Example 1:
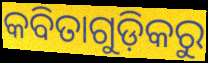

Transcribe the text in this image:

କବିତାଗୁଡ଼ିକରୁ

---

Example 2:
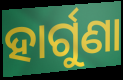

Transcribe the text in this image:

ହାର୍ଗୁଣା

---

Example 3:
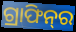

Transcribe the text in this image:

ଗ୍ରାଫିନ୍‌ର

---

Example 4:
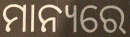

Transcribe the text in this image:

ମାନ୍ୟରେ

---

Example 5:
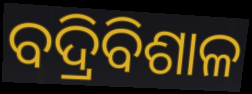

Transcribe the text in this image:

ବଦ୍ରିବିଶାଳ